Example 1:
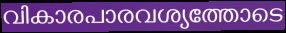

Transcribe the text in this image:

വികാരപാരവശ്യത്തോടെ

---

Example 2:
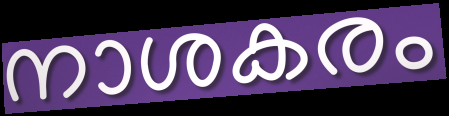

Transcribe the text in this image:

നാശകരം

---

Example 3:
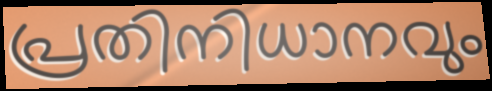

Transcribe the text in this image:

പ്രതിനിധാനവും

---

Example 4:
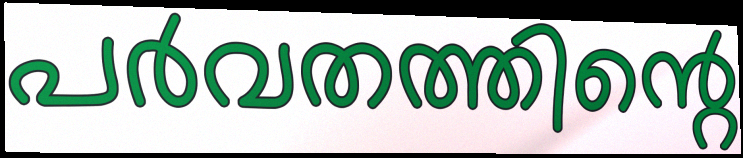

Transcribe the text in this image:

പർവതത്തിന്റെ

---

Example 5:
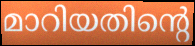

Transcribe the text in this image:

മാറിയതിന്റെ